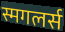
स्‍मगलर्स